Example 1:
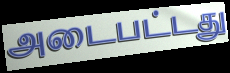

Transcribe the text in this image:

அடைபட்டது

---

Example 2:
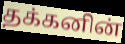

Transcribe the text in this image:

தக்கனின்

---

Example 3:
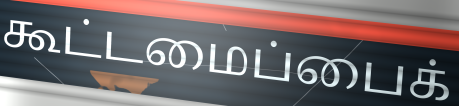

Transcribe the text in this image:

கூட்டமைப்பைக்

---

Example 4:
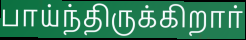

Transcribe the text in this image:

பாய்ந்திருக்கிறார்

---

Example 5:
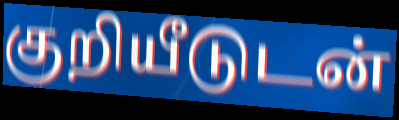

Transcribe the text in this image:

குறியீடுடன்